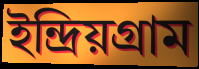
ইন্দ্রিয়গ্রাম